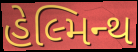
હેલ્મિન્થ